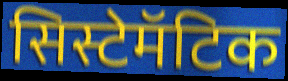
सिस्टेमॅटिक